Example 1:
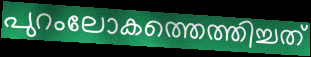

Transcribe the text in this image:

പുറംലോകത്തെത്തിച്ചത്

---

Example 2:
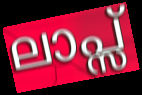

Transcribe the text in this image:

ലാപ്സ്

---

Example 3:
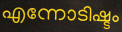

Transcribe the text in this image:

എന്നോടിഷ്ടം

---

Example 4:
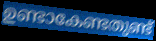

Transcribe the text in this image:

ഉണ്ടാകേണ്ടതുണ്ട്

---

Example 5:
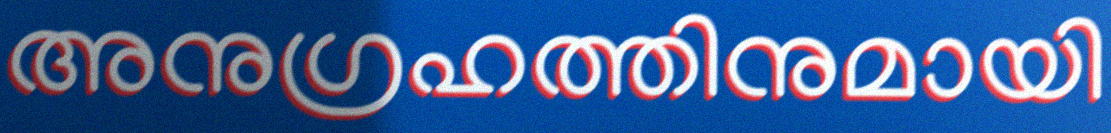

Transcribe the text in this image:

അനുഗ്രഹത്തിനുമായി